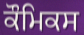
ਕੌਮਿਕਸ